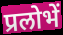
प्रलोभें